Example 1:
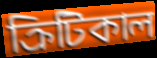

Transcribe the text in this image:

ক্রিটিকাল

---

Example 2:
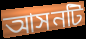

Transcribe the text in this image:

আসনটি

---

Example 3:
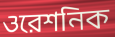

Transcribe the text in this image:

ওরেশনিক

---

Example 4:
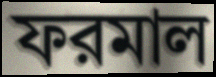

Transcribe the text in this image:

ফরমাল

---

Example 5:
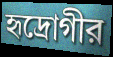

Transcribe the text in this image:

হৃদ্রোগীর